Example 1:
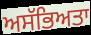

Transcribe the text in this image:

ਅਸੱਭਿਅਤਾ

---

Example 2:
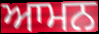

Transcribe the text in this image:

ਆਮਨ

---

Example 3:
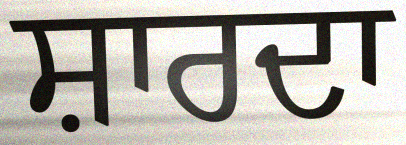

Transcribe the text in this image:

ਸ਼ਾਰਦਾ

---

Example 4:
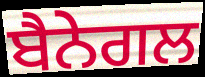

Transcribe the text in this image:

ਬੈਨੇਗਲ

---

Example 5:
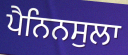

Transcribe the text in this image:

ਪੈਨਿਨਸੁਲਾ